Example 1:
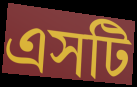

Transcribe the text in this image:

এসটি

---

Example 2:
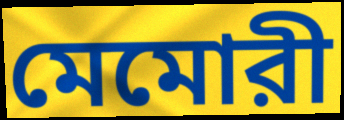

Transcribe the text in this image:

মেমোরী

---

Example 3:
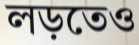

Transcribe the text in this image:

লড়তেও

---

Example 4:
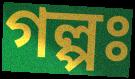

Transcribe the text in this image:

গল্পঃ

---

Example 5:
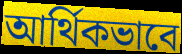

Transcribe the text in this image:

আর্থিকভাবে